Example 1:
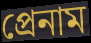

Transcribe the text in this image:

প্রেনাম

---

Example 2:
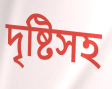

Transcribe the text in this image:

দৃষ্টিসহ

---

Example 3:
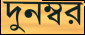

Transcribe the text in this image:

দুনম্বর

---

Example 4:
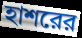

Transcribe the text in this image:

হাশরের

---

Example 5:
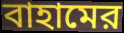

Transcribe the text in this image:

বাহামের